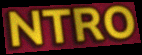
NTRO